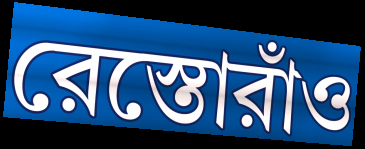
রেস্তোরাঁও